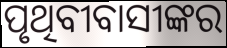
ପୃଥିବୀବାସୀଙ୍କର